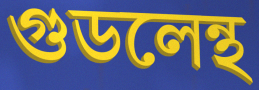
গুডলেন্থ